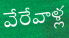
వేరేవాళ్ల